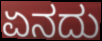
ಏನದು